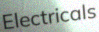
Electricals